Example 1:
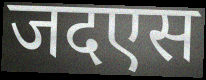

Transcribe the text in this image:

जदएस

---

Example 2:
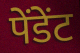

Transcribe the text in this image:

पेंडेंट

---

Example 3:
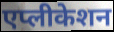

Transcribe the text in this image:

एप्लीकेशन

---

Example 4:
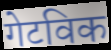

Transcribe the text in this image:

गेटविक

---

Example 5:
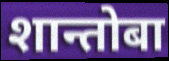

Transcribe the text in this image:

शान्तोबा